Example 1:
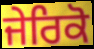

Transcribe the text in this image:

ਜੇਰਿਕੋ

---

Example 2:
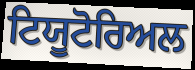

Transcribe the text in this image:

ਟਿਯੂਟੋਰਿਅਲ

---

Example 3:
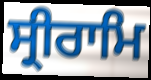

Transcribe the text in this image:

ਸ੍ਰੀਰਾਮਿ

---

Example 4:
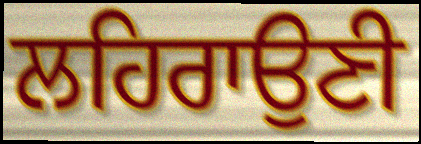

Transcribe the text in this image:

ਲਹਿਰਾਉਣੀ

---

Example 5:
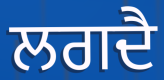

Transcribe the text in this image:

ਲਗਦੈ